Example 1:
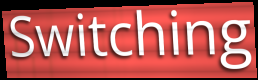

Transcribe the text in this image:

Switching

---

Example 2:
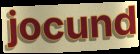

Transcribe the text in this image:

jocund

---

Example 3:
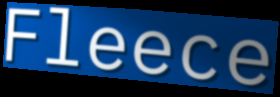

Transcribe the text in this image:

Fleece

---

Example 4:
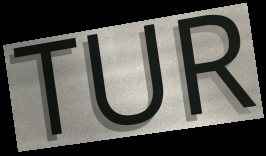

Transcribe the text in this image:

TUR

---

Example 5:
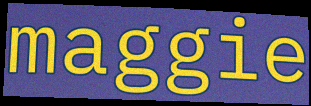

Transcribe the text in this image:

maggie